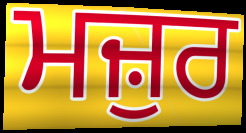
ਮਜ਼ੁਰ